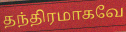
தந்திரமாகவே